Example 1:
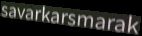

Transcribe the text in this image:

savarkarsmarak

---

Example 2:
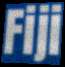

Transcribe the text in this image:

Fiji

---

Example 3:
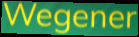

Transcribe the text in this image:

Wegener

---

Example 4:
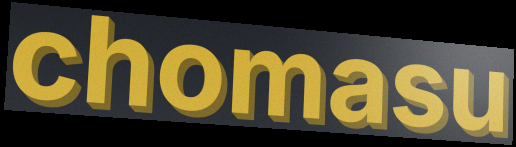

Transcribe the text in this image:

chomasu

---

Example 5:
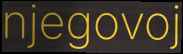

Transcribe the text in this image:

njegovoj